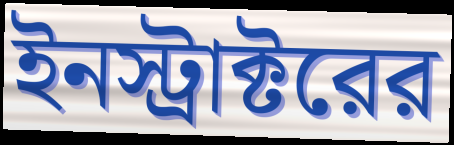
ইনস্ট্রাক্টরের